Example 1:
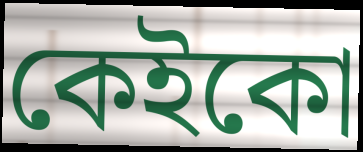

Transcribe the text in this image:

কেইকো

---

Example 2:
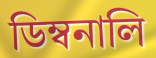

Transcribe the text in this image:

ডিম্বনালি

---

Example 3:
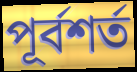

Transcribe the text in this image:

পূর্বশর্ত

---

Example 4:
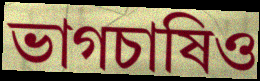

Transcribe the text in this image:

ভাগচাষিও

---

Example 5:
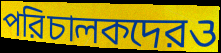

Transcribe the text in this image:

পরিচালকদেরও